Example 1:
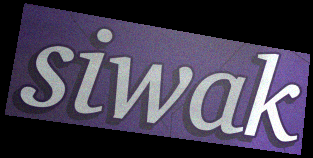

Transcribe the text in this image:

siwak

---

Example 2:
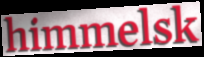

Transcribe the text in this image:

himmelsk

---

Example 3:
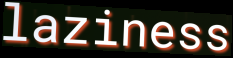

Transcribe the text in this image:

laziness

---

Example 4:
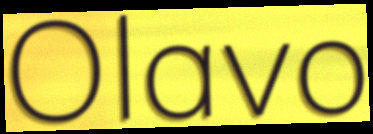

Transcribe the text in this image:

Olavo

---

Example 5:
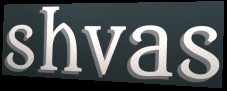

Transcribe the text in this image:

shvas